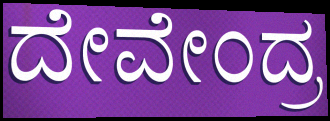
ದೇವೇಂದ್ರ